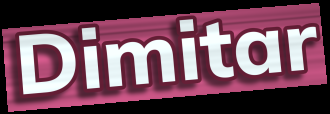
Dimitar